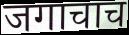
जगाचाच